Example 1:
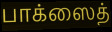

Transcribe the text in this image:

பாக்ஸைத்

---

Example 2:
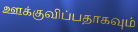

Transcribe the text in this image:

ஊக்குவிப்பதாகவும்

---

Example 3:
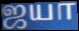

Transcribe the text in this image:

ஜயா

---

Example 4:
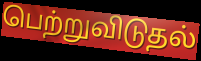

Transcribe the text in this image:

பெற்றுவிடுதல்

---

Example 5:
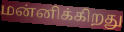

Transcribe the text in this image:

மன்னிக்கிறது